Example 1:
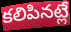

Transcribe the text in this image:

కలిపినట్లే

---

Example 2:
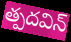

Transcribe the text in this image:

త్పదవిన్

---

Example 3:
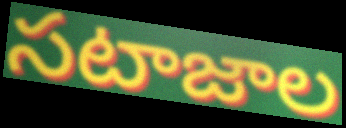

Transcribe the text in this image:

సటాజాల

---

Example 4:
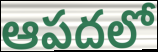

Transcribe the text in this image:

ఆపదలో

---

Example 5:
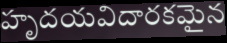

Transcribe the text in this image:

హృదయవిదారకమైన